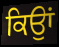
ਕਿਉਾਂ